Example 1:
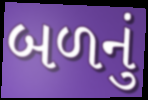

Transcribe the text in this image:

બળનું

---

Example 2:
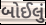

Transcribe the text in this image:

બોઈલું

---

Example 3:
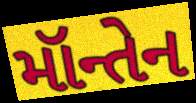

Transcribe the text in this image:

મૉન્તેન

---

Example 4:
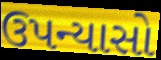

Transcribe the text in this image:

ઉપન્યાસો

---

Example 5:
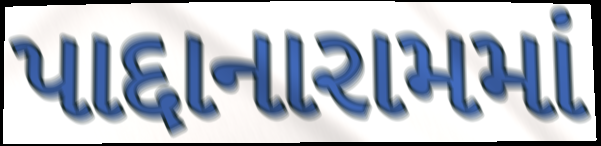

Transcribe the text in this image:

પાદ્દાનારામમાં